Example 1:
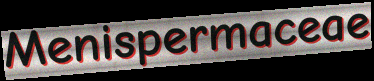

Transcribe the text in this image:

Menispermaceae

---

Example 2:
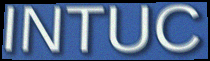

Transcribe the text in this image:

INTUC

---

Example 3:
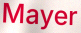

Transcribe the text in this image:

Mayer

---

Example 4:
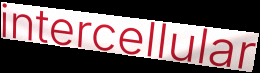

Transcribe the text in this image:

intercellular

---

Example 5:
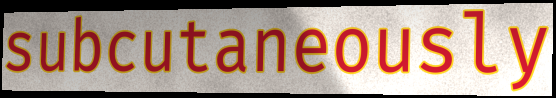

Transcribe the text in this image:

subcutaneously